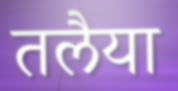
तलैया